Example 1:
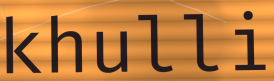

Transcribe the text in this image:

khulli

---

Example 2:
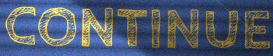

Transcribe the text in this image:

CONTINUE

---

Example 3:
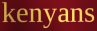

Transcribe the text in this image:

kenyans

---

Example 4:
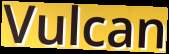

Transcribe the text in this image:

Vulcan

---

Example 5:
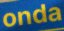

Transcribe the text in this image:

onda